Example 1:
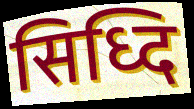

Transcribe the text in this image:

सिध्दि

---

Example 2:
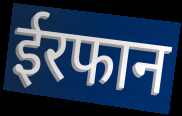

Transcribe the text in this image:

ईरफान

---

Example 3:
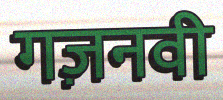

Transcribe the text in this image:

गज़नवी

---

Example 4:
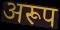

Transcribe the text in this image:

अरूप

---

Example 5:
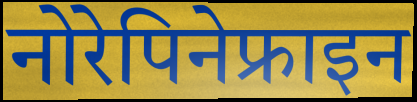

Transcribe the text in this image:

नोरेपिनेफ्राइन